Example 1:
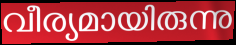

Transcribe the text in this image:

വീര്യമായിരുന്നു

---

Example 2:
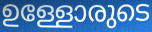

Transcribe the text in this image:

ഉള്ളോരുടെ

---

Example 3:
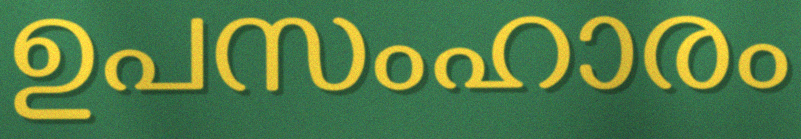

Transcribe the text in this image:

ഉപസംഹാരം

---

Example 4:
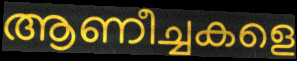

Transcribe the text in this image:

ആണീച്ചകളെ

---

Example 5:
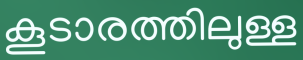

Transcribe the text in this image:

കൂടാരത്തിലുള്ള